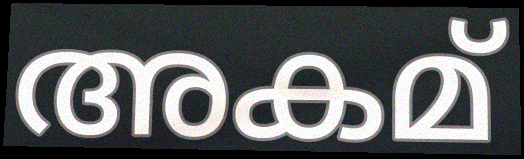
അകമ്